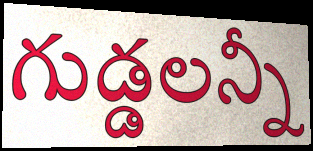
గుడ్డలన్నీ